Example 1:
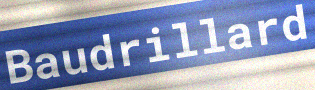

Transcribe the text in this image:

Baudrillard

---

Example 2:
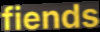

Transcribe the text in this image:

fiends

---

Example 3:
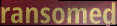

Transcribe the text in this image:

ransomed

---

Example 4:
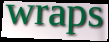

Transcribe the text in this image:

wraps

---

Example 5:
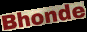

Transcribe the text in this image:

Bhonde